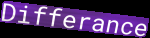
Differance